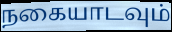
நகையாடவும்